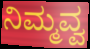
ನಿಮ್ಮವ್ವ